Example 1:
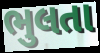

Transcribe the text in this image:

ભુલતા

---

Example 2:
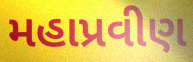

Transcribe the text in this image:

મહાપ્રવીણ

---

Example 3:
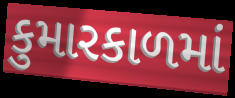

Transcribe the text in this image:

કુમારકાળમાં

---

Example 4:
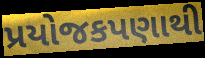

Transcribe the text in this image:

પ્રયોજકપણાથી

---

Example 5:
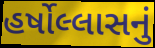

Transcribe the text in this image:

હર્ષોલ્લાસનું